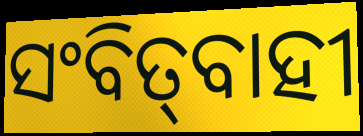
ସଂବିତ୍‌ବାହୀ